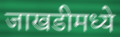
जाखडीमध्ये